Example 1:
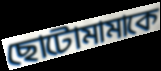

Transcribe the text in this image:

ছোটোমামাকে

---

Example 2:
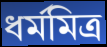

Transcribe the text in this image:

ধর্মমিত্র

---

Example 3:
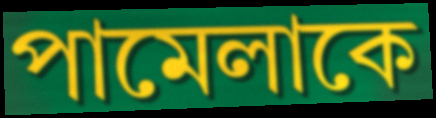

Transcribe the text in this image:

পামেলাকে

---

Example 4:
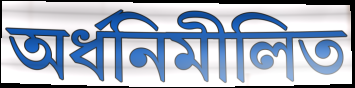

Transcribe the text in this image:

অর্ধনিমীলিত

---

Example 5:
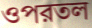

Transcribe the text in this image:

ওপরতল